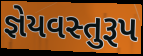
જ્ઞેયવસ્તુરૂપ